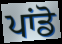
ਪਾਂਡੋ